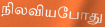
நிலவியபோது